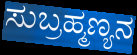
ಸುಬ್ರಹ್ಮಣ್ಯನ